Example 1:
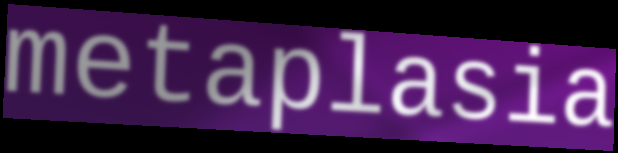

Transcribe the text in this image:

metaplasia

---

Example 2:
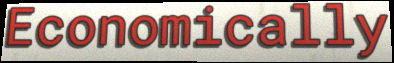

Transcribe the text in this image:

Economically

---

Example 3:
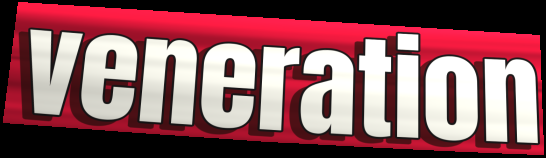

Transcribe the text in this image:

veneration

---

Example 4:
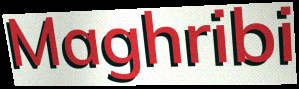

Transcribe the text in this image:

Maghribi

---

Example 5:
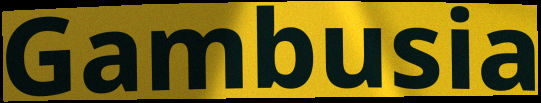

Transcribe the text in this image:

Gambusia